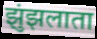
झुंझलाता